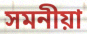
সমনীয়া